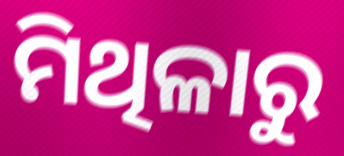
ମିଥିଳାରୁ